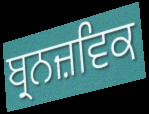
ਬ੍ਰਨਜ਼ਵਿਕ